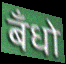
बँधो